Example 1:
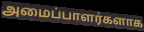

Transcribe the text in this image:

அமைப்பாளர்களாக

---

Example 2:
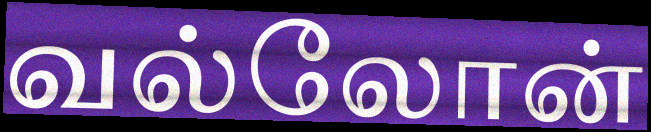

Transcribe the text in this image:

வல்லோன்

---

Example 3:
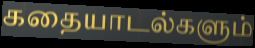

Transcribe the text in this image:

கதையாடல்களும்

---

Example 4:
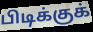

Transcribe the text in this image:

பிடிக்குக்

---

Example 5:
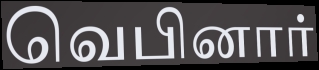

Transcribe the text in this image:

வெபினார்